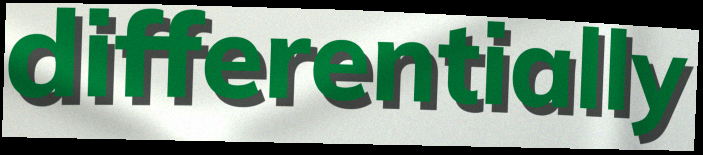
differentially